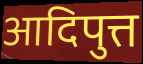
आदिपुत्त